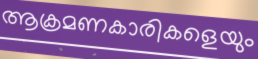
ആക്രമണകാരികളെയും